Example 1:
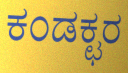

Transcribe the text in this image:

ಕಂಡಕ್ಟರ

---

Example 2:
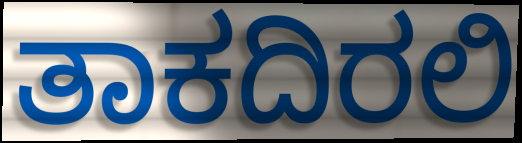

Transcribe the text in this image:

ತಾಕದಿರಲಿ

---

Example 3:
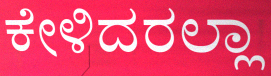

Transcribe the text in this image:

ಕೇಳಿದರಲ್ಲಾ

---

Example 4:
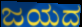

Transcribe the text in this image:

ಜಯದ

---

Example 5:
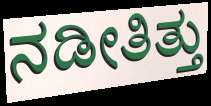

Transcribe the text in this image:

ನಡೀತಿತ್ತು